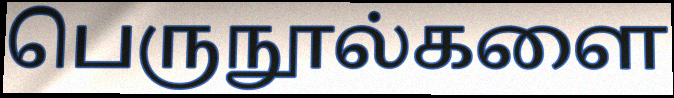
பெருநூல்களை